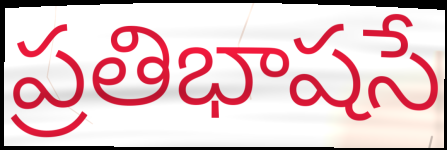
ప్రతిభాషసే